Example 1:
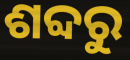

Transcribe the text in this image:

ଶବ୍ଦରୁ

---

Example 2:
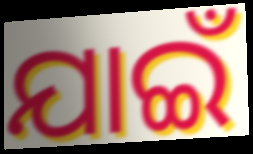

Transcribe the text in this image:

ଯାଇଁ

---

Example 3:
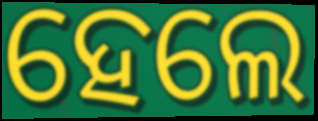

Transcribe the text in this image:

ହେଲେ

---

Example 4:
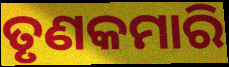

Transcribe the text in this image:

ତୃଣକମାରି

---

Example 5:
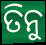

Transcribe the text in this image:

ତିନୁ